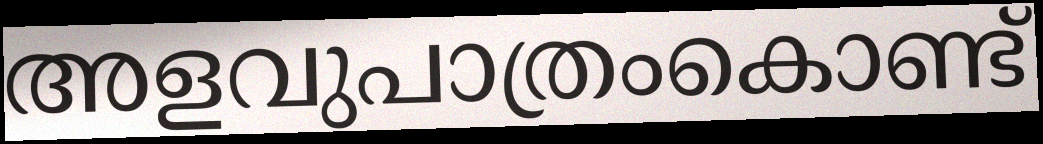
അളവുപാത്രംകൊണ്ട്